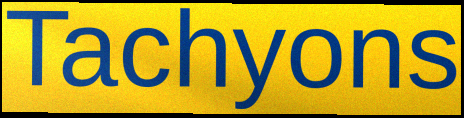
Tachyons